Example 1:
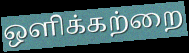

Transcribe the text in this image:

ஒளிக்கற்றை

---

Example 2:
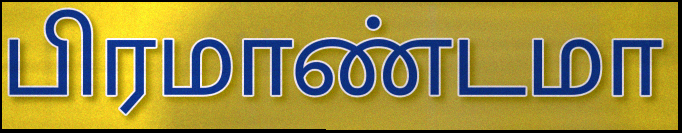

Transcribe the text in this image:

பிரமாண்டமா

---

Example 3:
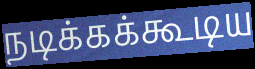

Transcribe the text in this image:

நடிக்கக்கூடிய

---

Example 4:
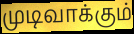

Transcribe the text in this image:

முடிவாக்கும்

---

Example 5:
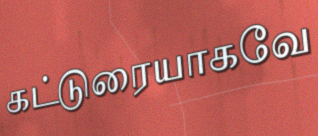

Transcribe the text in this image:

கட்டுரையாகவே